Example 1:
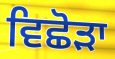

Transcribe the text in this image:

ਵਿਛੋੜਾ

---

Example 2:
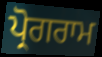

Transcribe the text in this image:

ਪ੍ਰੋਗਰਾਮ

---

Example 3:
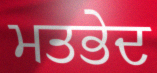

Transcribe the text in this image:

ਮਤਭੇਦ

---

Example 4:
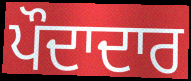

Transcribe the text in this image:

ਪੌਦਾਦਾਰ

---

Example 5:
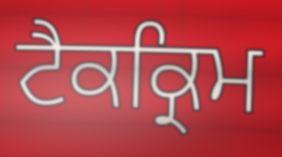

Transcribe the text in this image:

ਟੈਕਕ੍ਰਿਮ